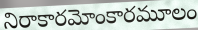
నిరాకారమోంకారమూలం